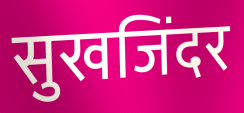
सुखजिंदर